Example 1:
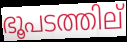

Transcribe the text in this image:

ഭൂപടത്തില്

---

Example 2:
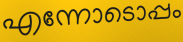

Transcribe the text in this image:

എന്നോടൊപ്പം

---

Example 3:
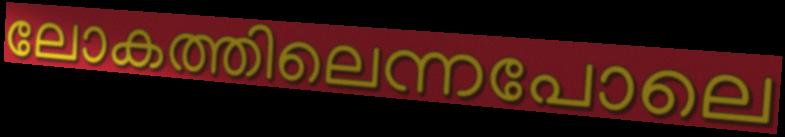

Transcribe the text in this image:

ലോകത്തിലെന്നപോലെ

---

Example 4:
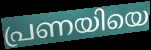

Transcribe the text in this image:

പ്രണയിയെ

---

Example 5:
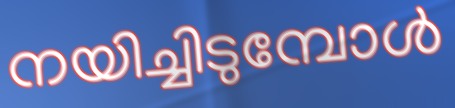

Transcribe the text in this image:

നയിച്ചിടുമ്പോൾ